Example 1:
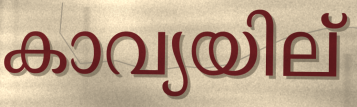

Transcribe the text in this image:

കാവ്യയില്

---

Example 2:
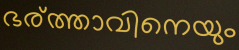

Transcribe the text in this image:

ഭര്ത്താവിനെയും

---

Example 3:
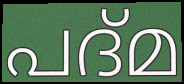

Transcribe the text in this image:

പദ്മ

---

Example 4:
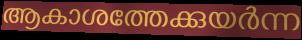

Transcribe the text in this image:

ആകാശത്തേക്കുയർന്ന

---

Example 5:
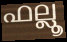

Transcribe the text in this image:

ഫല്ലൂ